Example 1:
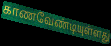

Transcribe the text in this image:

காணவேண்டியுள்ளது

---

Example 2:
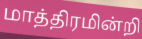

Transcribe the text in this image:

மாத்திரமின்றி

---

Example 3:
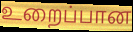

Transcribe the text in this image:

உறைப்பான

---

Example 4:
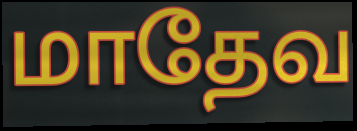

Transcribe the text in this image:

மாதேவ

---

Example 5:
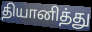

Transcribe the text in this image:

தியானித்து